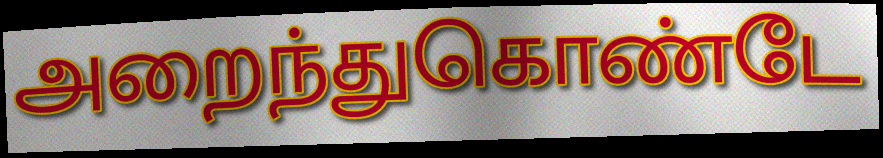
அறைந்துகொண்டே